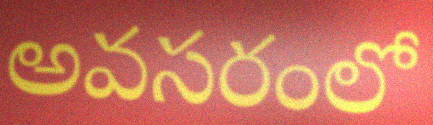
అవసరంలో